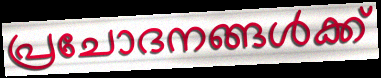
പ്രചോദനങ്ങൾക്ക്